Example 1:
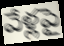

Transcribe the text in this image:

వేళ్లపై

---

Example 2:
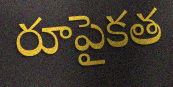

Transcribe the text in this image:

రూపైకత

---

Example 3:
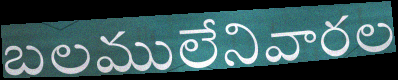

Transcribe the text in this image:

బలములేనివారల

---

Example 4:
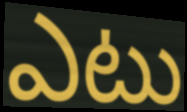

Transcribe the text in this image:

ఎటు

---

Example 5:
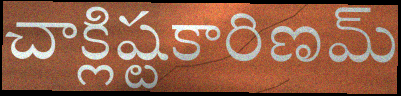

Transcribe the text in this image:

చాక్లిష్టకారిణమ్